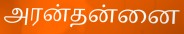
அரன்தன்னை